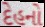
દેહનો